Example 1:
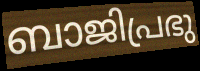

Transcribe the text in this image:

ബാജിപ്രഭു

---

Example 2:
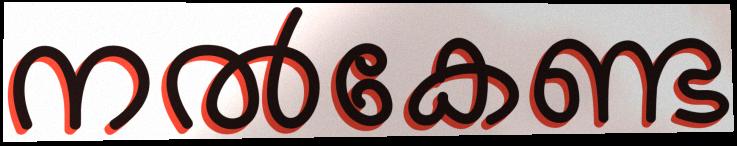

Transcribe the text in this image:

നൽകേണ്ട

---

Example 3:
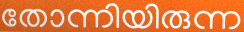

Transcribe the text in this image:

തോന്നിയിരുന്ന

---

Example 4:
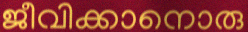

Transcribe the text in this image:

ജീവിക്കാനൊരു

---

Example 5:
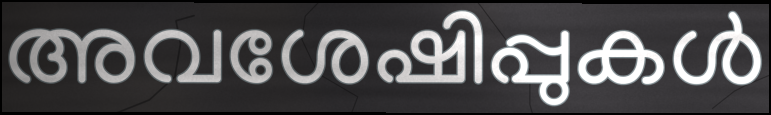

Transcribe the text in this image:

അവശേഷിപ്പുകൾ